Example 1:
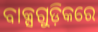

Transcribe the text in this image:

ବାକ୍ସଗୁଡ଼ିକରେ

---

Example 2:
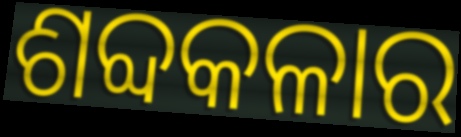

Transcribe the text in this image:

ଶବ୍ଦକଳାର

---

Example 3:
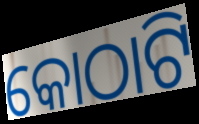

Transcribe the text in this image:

କୋଠାଟି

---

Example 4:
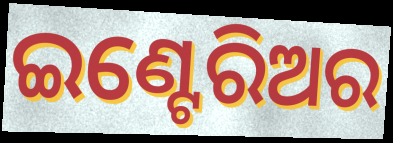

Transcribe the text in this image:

ଇଣ୍ଟେରିଅର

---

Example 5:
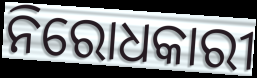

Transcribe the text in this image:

ନିରୋଧକାରୀ